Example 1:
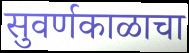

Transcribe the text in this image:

सुवर्णकाळाचा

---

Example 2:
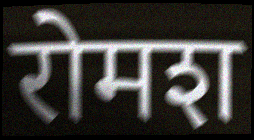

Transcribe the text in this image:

रोमश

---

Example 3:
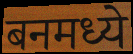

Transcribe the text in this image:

बनमध्ये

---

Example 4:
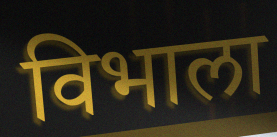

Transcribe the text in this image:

विभाला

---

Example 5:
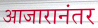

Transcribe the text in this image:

आजारानंतर